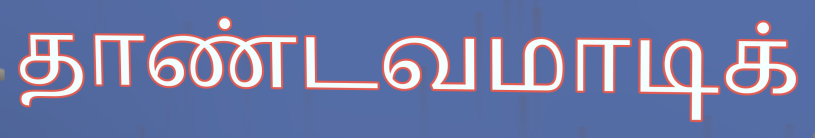
தாண்டவமாடிக்